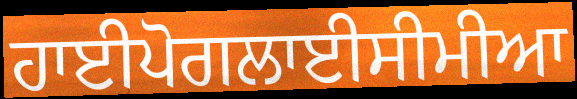
ਹਾਈਪੋਗਲਾਈਸੀਮੀਆ